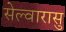
सेल्वारासु